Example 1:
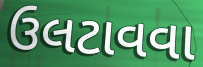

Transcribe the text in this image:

ઉલટાવવા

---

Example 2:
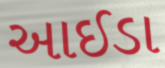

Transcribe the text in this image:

આઈડા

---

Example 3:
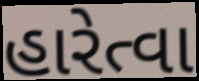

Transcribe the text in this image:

હારેત્વા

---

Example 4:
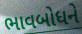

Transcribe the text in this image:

ભાવબોધને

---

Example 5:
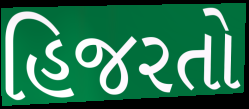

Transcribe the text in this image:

હિજરતો